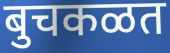
बुचकळत